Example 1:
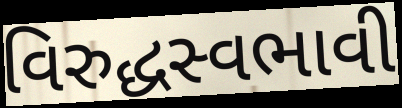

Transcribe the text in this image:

વિરુદ્ધસ્વભાવી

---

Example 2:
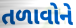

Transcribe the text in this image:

તળાવોને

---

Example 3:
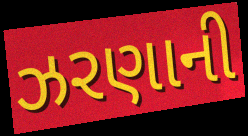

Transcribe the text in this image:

ઝરણાની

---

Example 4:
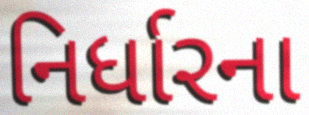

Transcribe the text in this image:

નિર્ધારના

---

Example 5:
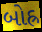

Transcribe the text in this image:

બોહ્ર